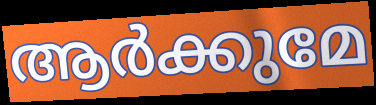
ആർക്കുമേ